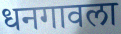
धनगावला